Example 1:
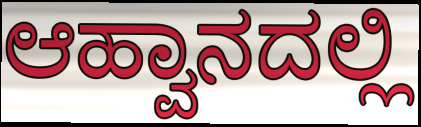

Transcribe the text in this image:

ಆಹ್ವಾನದಲ್ಲಿ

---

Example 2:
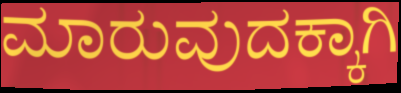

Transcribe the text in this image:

ಮಾರುವುದಕ್ಕಾಗಿ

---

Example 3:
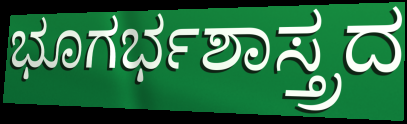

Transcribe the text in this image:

ಭೂಗರ್ಭಶಾಸ್ತ್ರದ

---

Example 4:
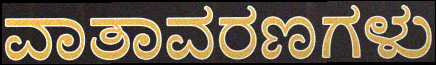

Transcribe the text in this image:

ವಾತಾವರಣಗಳು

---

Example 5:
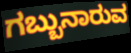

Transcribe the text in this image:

ಗಬ್ಬುನಾರುವ